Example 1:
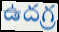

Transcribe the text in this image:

ఉదగ్ర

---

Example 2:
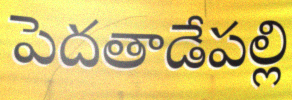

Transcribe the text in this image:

పెదతాడేపల్లి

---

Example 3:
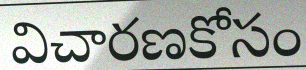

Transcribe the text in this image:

విచారణకోసం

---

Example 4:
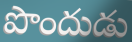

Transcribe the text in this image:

పొందుడు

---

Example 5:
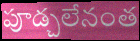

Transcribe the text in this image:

పూడ్చలేనంత